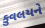
કુવલયને